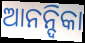
ଆନନ୍ଦିକା